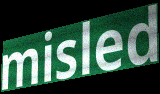
misled